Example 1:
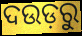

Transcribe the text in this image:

ଦଉଡ଼ରୁ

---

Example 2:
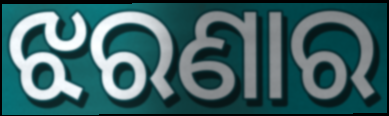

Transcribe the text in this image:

ଝରଣାର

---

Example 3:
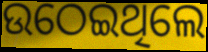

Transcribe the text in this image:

ଉଠେଇଥିଲେ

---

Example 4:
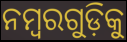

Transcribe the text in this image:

ନମ୍ବରଗୁଡ଼ିକୁ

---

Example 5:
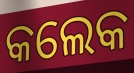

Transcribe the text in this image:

କଲେକ